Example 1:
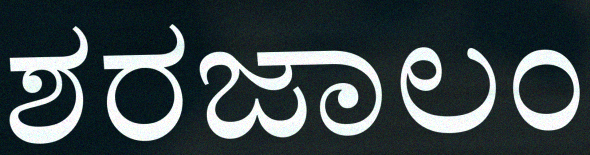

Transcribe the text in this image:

ಶರಜಾಲಂ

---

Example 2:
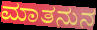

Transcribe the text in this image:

ಮಾತನುನ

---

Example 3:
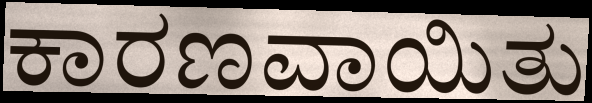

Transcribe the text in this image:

ಕಾರಣವಾಯಿತು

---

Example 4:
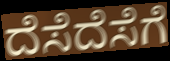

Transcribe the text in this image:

ದೆಸೆದೆಸೆಗೆ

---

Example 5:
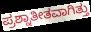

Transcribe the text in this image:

ಪ್ರಶ್ನಾತೀತವಾಗಿತ್ತು